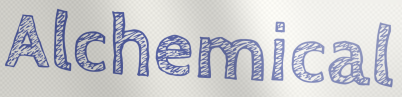
Alchemical